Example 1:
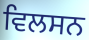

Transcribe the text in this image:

ਵਿਲਸਨ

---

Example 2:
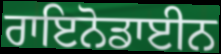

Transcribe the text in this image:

ਰਾਇਨੋਡਾਈਨ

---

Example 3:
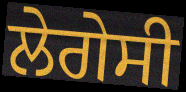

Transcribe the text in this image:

ਲੇਗੇਸੀ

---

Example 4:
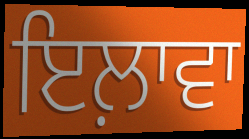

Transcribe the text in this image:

ਇਲ਼ਾਵਾ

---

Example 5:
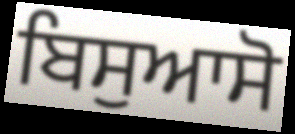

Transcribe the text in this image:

ਬਿਸੁਆਸੋ